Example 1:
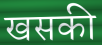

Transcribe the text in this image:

खसकी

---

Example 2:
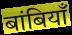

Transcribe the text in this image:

बांबियाँ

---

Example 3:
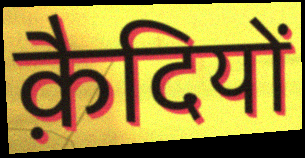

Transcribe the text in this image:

क़ैदियों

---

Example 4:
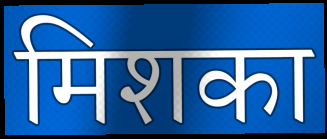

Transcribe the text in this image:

मिशका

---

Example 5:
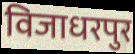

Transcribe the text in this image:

विजाधरपुर